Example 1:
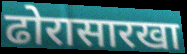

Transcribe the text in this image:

ढोरासारखा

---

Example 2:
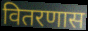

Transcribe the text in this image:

वितरणास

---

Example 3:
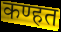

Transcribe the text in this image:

कण्हत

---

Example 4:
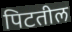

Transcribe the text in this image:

पिटतील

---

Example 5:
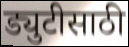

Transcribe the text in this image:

ड्युटीसाठी